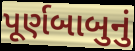
પૂર્ણબાબુનું